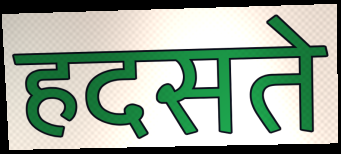
हदसते